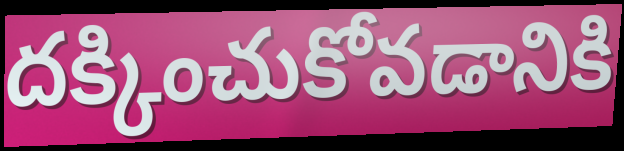
దక్కించుకోవడానికి